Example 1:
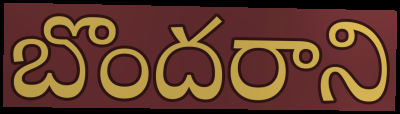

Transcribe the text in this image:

బొందరాని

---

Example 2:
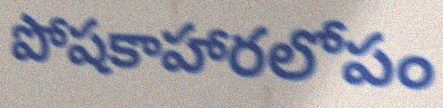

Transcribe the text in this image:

పోషకాహారలోపం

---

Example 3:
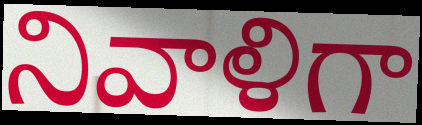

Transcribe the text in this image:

నివాళిగా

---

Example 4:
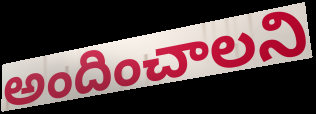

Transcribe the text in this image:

అందించాలని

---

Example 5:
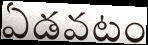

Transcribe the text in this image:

ఏడవటం